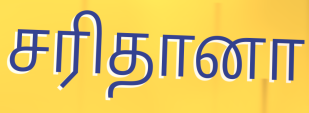
சரிதானா